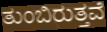
ತುಂಬಿರುತ್ತವೆ